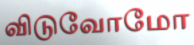
விடுவோமோ